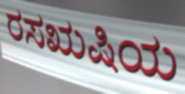
ರಸಋಷಿಯ